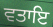
ਵਤਾਇ